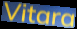
Vitara